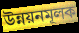
উন্নয়নমূলক